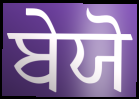
ਬੇਯੋ